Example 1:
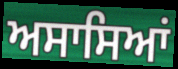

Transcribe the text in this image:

ਅਸਾਸਿਆਂ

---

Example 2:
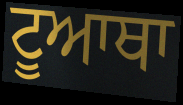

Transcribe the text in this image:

ਟੂਆਥਾ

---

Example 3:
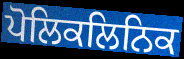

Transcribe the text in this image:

ਪੋਲਿਕਲਿਨਿਕ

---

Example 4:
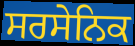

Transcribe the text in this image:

ਸਰਸੇਨਿਕ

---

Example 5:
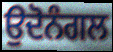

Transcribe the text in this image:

ਉਦੋਨੰਗਲ